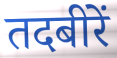
तदबीरें